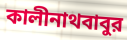
কালীনাথবাবুর